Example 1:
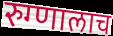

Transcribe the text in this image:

रुग्णालाच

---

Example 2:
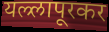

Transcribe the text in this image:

यल्लापूरकर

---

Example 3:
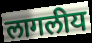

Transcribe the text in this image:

लागलीय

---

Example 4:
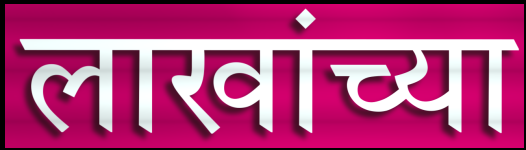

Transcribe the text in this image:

लाखांच्या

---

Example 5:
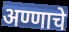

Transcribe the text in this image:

अण्णाचे